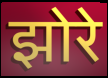
झोरे